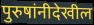
पुरुषांनीदेखील